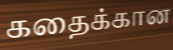
கதைக்கான